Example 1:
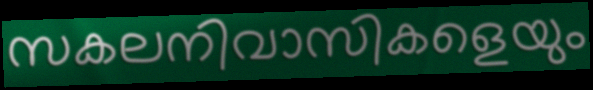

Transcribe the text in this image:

സകലനിവാസികളെയും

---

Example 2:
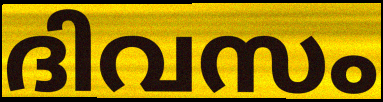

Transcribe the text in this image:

ദിവസം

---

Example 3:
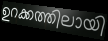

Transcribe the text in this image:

ഉറക്കത്തിലായി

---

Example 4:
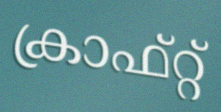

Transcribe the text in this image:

ക്രാഫ്റ്റ്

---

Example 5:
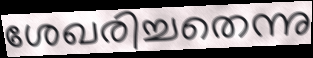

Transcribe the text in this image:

ശേഖരിച്ചതെന്നു